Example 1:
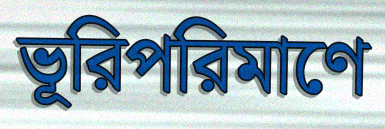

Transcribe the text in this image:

ভূরিপরিমাণে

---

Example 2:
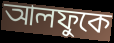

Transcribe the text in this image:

আলফুকে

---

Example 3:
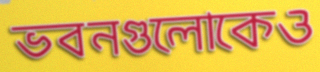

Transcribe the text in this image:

ভবনগুলোকেও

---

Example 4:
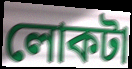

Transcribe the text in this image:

লোকটা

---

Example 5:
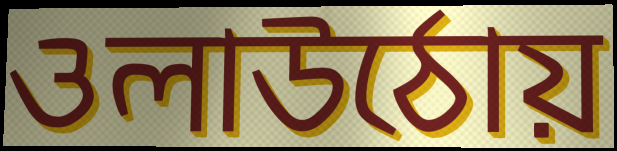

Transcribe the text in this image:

ওলাউঠোয়